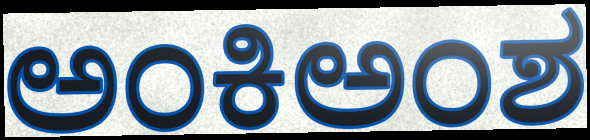
ಅಂಕಿಅಂಶ